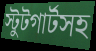
স্টুটগার্টসহ